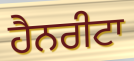
ਹੈਨਰੀਟਾ